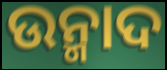
ଉନ୍ମାଦ